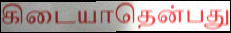
கிடையாதென்பது